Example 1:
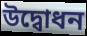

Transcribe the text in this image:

উদ্বোধন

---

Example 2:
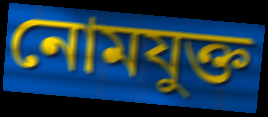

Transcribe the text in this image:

নোমযুক্ত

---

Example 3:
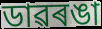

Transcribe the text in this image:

ডাৱৰঙা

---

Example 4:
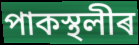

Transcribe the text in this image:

পাকস্থলীৰ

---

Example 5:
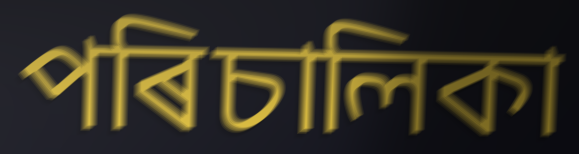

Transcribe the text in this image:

পৰিচালিকা